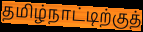
தமிழ்நாட்டிற்குத்